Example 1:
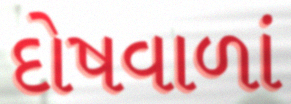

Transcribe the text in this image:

દોષવાળાં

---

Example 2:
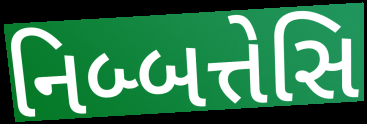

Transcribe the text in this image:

નિબ્બત્તેસિ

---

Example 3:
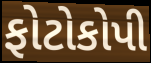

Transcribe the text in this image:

ફોટોકોપી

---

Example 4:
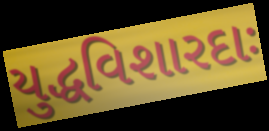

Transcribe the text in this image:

યુદ્ધવિશારદાઃ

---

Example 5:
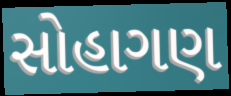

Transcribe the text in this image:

સોહાગણ